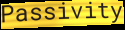
Passivity